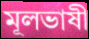
মূলভাষী